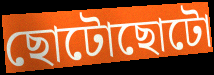
ছোটোছোটো